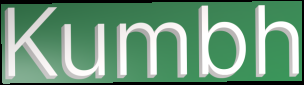
Kumbh